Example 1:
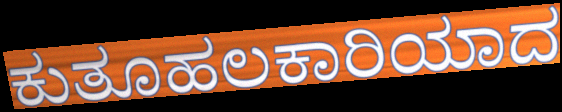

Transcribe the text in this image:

ಕುತೂಹಲಕಾರಿಯಾದ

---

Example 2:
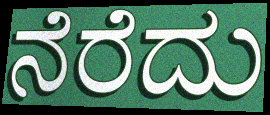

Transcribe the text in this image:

ನೆರೆದು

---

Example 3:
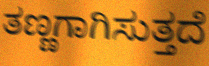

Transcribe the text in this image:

ತಣ್ಣಗಾಗಿಸುತ್ತದೆ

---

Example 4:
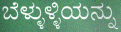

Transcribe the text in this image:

ಬೆಳ್ಳುಳ್ಳಿಯನ್ನು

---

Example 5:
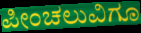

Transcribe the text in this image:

ಪೀಂಚಲುವಿಗೂ